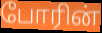
போரின்